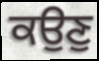
ਕਉਣੁ